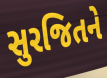
સુરજિતને